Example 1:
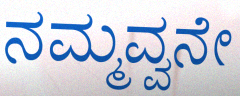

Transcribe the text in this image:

ನಮ್ಮವ್ವನೇ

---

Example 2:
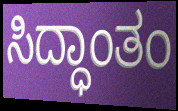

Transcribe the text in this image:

ಸಿದ್ಧಾಂತಂ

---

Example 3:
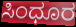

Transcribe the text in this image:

ಸಿಂಧೂರ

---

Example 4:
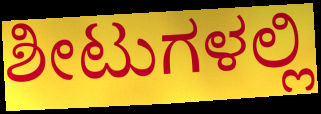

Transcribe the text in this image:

ಶೀಟುಗಳಲ್ಲಿ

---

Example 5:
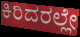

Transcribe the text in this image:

ಕಿರಿದರಲ್ಲೇ